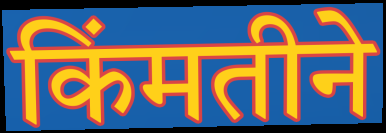
किंमतीने